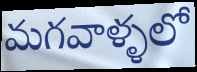
మగవాళ్ళలో